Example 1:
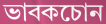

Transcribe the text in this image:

ভাবকচোন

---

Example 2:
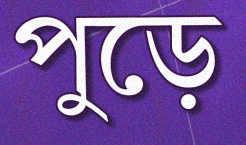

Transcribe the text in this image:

পুড়ে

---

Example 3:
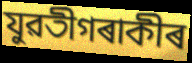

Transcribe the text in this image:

যুৱতীগৰাকীৰ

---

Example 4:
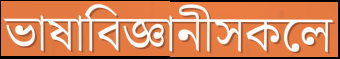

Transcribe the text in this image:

ভাষাবিজ্ঞানীসকলে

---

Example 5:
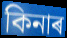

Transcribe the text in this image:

কিনাৰ